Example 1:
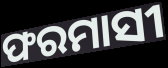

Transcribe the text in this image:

ଫରମାସୀ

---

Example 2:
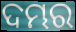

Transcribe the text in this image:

ଦମ୍ଭର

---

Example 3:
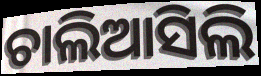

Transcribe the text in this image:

ଚାଲିଆସିଲି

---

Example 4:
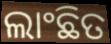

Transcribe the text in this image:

ଲାଂଛିତ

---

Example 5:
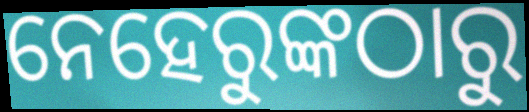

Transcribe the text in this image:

ନେହେରୁଙ୍କଠାରୁ